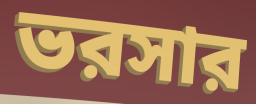
ভরসার